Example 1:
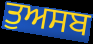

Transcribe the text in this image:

ਤੁਅਸਬ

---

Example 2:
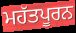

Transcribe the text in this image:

ਮਹੱਤਪੂਰਨ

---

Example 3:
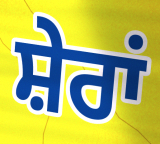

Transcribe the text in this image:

ਸ਼ੇਰਾਂ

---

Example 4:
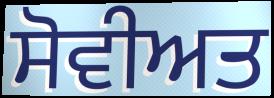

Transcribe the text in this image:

ਸੋਵੀਅਤ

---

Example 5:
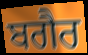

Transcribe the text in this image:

ਬਗੈਰ